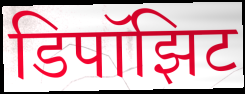
डिपॉझिट